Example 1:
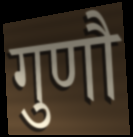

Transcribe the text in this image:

गुणौ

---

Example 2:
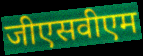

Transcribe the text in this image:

जीएसवीएम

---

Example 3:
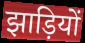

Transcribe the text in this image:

झाड़ियों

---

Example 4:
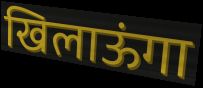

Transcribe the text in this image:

खिलाऊंगा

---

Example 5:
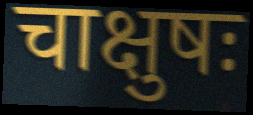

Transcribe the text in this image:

चाक्षुषः